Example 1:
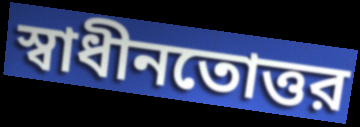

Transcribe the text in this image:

স্বাধীনতোত্তর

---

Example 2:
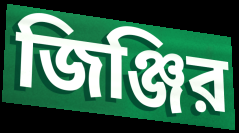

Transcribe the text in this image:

জিঞ্জির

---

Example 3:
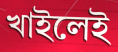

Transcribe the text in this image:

খাইলেই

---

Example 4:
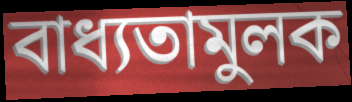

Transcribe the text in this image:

বাধ্যতামুলক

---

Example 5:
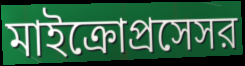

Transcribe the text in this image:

মাইক্রোপ্রসেসর